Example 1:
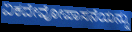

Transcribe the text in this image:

ಏಕದೇವೋಪಾಸನೆಯನ್ನು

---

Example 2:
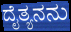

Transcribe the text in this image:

ದೈತ್ಯನನು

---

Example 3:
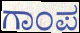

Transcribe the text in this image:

ಗಾಂಪ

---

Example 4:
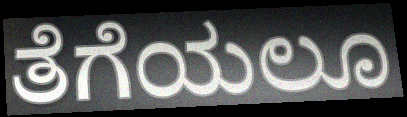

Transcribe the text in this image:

ತೆಗೆಯಲೂ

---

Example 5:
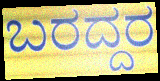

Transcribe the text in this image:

ಬರದ್ದರ